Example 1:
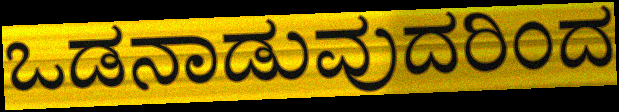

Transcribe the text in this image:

ಒಡನಾಡುವುದರಿಂದ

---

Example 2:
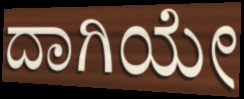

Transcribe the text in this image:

ದಾಗಿಯೇ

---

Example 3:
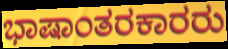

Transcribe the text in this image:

ಭಾಷಾಂತರಕಾರರು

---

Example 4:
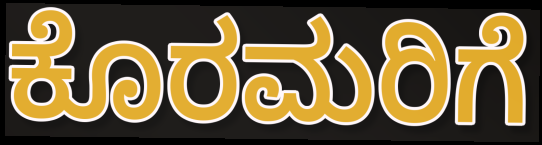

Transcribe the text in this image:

ಕೊರಮರಿಗೆ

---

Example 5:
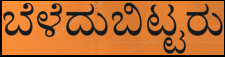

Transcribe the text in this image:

ಬೆಳೆದುಬಿಟ್ಟರು